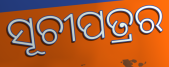
ସୂଚୀପତ୍ରର